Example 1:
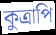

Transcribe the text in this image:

কুত্রাপি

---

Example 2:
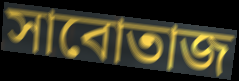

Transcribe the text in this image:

সাবোতাজ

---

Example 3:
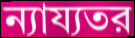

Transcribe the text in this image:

ন্যায্যতর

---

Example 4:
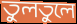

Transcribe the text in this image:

তুলতুলে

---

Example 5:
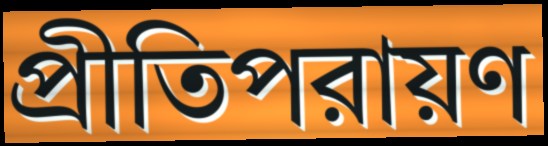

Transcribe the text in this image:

প্রীতিপরায়ণ